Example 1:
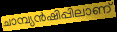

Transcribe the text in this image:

ചാമ്പ്യൻഷിപ്പിലാണ്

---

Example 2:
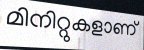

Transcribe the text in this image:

മിനിറ്റുകളാണ്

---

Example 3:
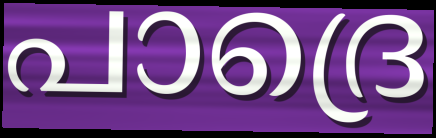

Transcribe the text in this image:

പാദ്രെ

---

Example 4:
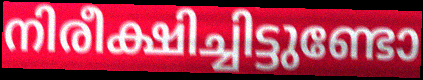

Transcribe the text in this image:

നിരീക്ഷിച്ചിട്ടുണ്ടോ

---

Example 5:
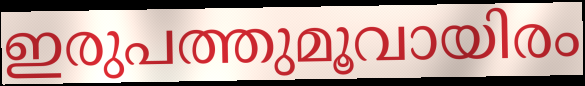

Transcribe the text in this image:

ഇരുപത്തുമൂവായിരം